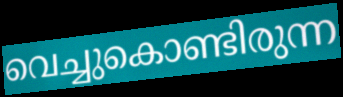
വെച്ചുകൊണ്ടിരുന്ന